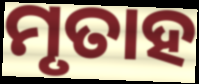
ମୃତାହ